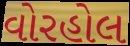
વોરહોલ